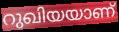
റുഖിയയാണ്